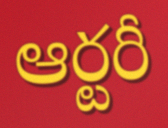
ఆర్టరీ